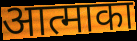
आत्माका